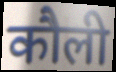
कौली